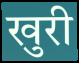
खुरी